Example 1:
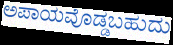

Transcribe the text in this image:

ಅಪಾಯವೊಡ್ಡಬಹುದು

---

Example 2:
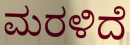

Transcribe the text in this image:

ಮರಳಿದೆ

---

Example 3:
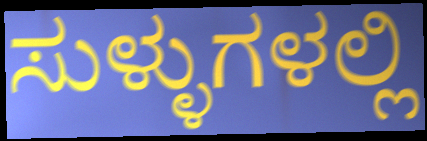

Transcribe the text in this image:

ಸುಳ್ಳುಗಳಲ್ಲಿ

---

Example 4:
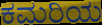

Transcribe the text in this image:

ಕಮರಿಯ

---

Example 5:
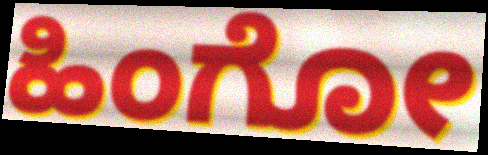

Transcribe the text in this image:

ಹಿಂಗೋ